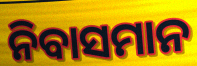
ନିବାସମାନ